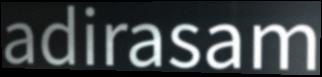
adirasam